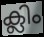
ക്ലിം